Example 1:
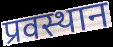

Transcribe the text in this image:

प्रवस्थान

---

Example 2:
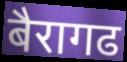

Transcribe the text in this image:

बैरागढ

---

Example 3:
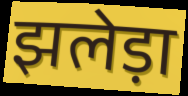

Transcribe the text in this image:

झलेड़ा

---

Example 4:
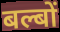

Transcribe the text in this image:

बल्बों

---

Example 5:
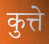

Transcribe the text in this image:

कुत्ते